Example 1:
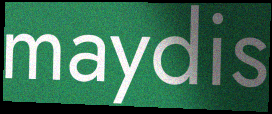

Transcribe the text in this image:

maydis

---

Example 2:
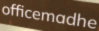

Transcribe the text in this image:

officemadhe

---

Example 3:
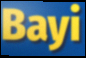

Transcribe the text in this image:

Bayi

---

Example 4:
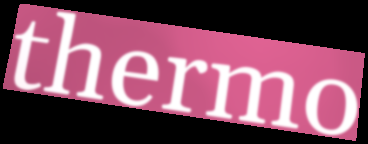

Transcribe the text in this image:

thermo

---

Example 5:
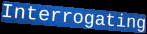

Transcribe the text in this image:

Interrogating